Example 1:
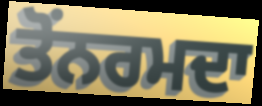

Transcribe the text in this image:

ਤੋਂਨਰਮਦਾ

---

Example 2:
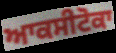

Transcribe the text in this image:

ਆਕਸੀਟੋਕਾ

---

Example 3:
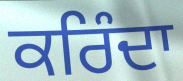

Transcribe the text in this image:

ਕਰਿੰਦਾ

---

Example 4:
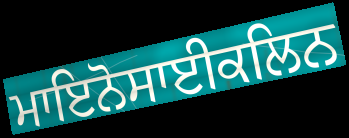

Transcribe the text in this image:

ਮਾਇਨੋਸਾਈਕਲਿਨ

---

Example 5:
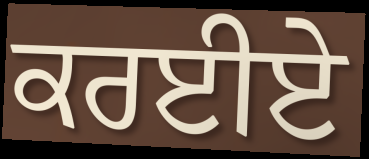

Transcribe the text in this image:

ਕਰਈਏ